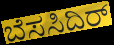
ಬೆಸಸಿದಿರ್